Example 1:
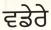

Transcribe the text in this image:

ਵਡੇਰੇ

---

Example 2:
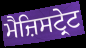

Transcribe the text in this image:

ਮੈਜ਼ਿਸਟ੍ਰੇਟ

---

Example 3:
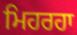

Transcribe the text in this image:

ਮਿਹਰਹਾ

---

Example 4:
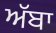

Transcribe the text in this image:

ਅੱਬਾ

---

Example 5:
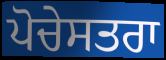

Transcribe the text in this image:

ਪੋਚੇਸਤਰਾ